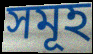
সমূহ